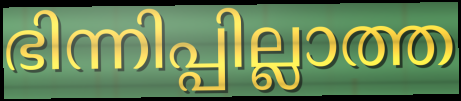
ഭിന്നിപ്പില്ലാത്ത